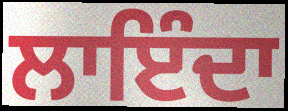
ਲਾਇੰਦਾ